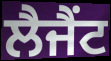
ਲੈਜੈਂਟ